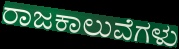
ರಾಜಕಾಲುವೆಗಳು